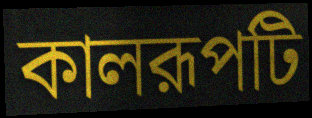
কালরূপটি